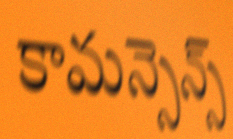
కామన్సెన్స్